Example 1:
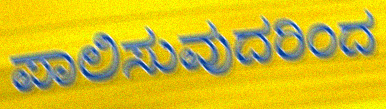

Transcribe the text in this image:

ಪಾಲಿಸುವುದರಿಂದ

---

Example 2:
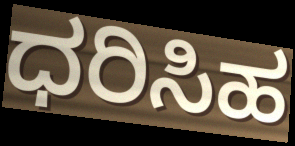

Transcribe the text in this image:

ಧರಿಸಿಹ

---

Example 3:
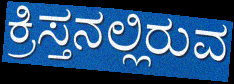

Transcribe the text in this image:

ಕ್ರಿಸ್ತನಲ್ಲಿರುವ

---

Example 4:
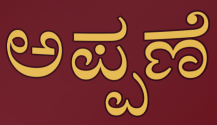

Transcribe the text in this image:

ಅಪ್ಪಣೆ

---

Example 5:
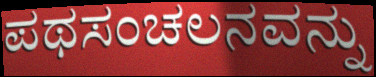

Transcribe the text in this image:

ಪಥಸಂಚಲನವನ್ನು